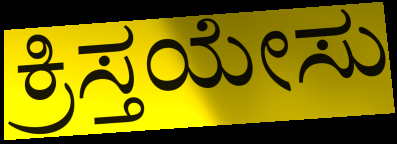
ಕ್ರಿಸ್ತಯೇಸು